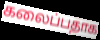
கலைப்பதாக